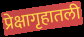
प्रेक्षागृहातली